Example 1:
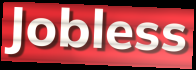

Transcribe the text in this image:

Jobless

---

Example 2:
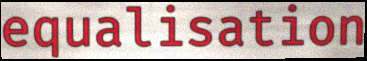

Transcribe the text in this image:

equalisation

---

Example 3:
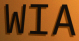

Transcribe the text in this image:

WIA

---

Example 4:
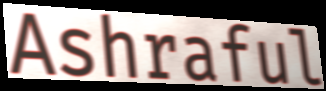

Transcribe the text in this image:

Ashraful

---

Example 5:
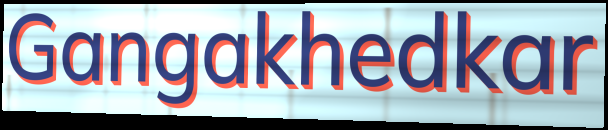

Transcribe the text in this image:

Gangakhedkar